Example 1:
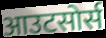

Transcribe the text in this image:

आउटसोर्स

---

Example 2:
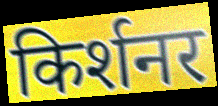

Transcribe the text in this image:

किर्शनर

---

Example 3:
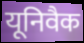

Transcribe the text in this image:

यूनिवैक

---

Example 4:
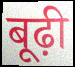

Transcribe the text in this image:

बूढ़ी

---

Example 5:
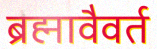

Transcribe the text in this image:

ब्रह्मावैवर्त